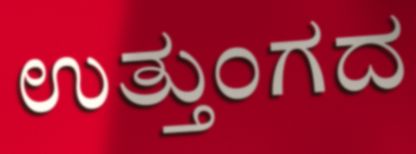
ಉತ್ತುಂಗದ